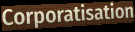
Corporatisation